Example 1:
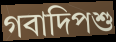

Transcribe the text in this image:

গবাদিপশু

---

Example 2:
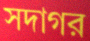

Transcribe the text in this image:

সদাগর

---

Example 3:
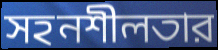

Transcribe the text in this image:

সহনশীলতার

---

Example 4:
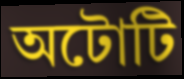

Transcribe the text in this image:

অটোটি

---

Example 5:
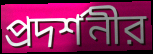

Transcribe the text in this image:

প্রদর্শনীর